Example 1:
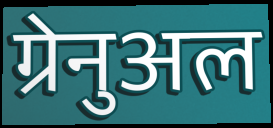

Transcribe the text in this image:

ग्रेनुअल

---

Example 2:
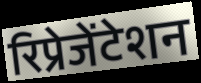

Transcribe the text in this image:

रिप्रेजेंटेशन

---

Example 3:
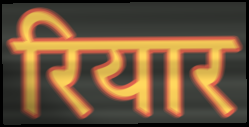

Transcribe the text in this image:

रियार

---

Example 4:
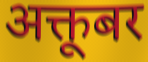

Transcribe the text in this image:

अक्तूबर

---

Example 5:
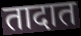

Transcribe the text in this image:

तादात